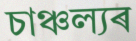
চাঞ্চল্যৰ